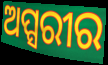
ଅପ୍ସରୀର